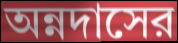
অন্নদাসের